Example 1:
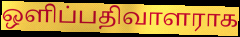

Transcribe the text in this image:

ஒளிப்பதிவாளராக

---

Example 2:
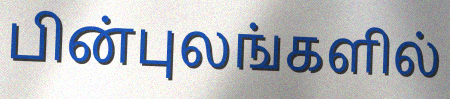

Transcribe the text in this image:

பின்புலங்களில்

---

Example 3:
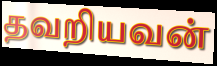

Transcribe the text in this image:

தவறியவன்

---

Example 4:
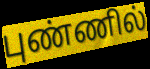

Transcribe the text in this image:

புண்ணில்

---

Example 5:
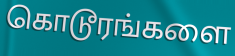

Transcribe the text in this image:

கொடூரங்களை